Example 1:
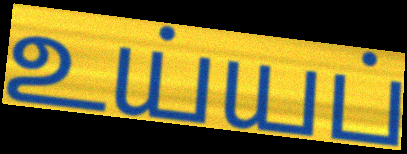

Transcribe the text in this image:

உய்யப்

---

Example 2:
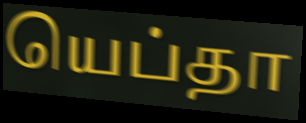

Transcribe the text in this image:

யெப்தா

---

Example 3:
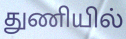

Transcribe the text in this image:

துணியில்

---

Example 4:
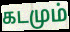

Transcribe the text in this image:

கடமும்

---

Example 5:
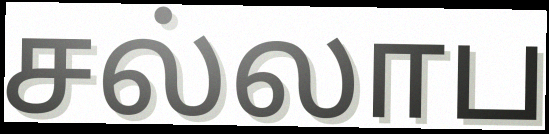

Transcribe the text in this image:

சல்லாப